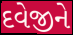
દવેજીને